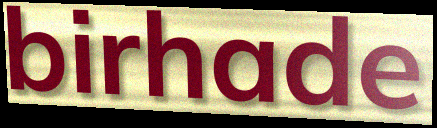
birhade